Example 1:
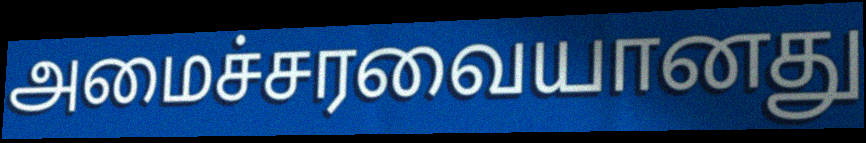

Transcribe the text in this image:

அமைச்சரவையானது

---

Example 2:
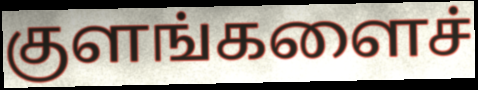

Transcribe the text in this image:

குளங்களைச்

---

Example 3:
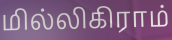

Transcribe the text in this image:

மில்லிகிராம்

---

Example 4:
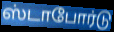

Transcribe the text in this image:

ஸ்டாபோர்டு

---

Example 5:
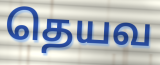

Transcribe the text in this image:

தெயவ